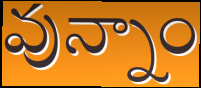
వున్నాం